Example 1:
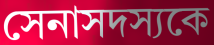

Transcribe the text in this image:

সেনাসদস্যকে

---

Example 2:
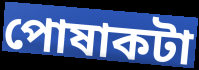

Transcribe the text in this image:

পোষাকটা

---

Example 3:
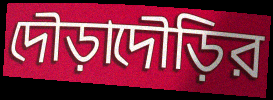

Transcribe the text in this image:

দৌড়াদৌড়ির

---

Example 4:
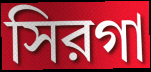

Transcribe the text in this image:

সিরগা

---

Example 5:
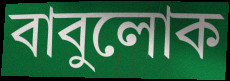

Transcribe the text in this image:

বাবুলোক